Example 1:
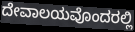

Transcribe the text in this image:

ದೇವಾಲಯವೊಂದರಲ್ಲಿ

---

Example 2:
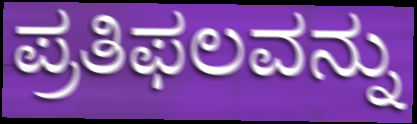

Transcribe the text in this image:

ಪ್ರತಿಫಲವನ್ನು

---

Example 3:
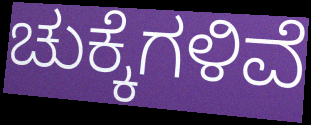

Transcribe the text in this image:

ಚುಕ್ಕೆಗಳಿವೆ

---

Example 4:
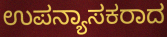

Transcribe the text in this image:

ಉಪನ್ಯಾಸಕರಾದ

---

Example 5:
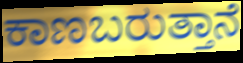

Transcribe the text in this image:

ಕಾಣಬರುತ್ತಾನೆ